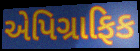
એપિગ્રાફિક